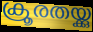
ക്രൂരതയ്ക്കു